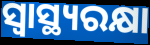
ସ୍ବାସ୍ଥ୍ୟରକ୍ଷା